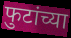
फुटांच्या